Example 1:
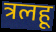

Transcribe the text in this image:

त्रलहू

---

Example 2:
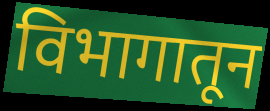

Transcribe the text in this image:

विभागातून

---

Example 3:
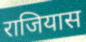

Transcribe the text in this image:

राजियास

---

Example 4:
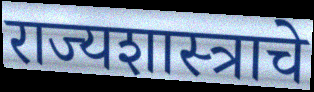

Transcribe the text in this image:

राज्यशास्त्राचे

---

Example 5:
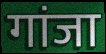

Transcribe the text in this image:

गांजा